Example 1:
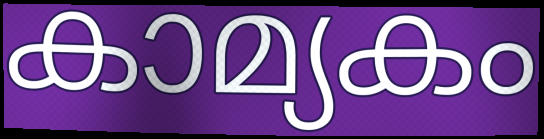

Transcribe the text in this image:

കാമ്യകം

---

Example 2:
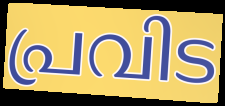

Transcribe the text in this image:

പ്രവിട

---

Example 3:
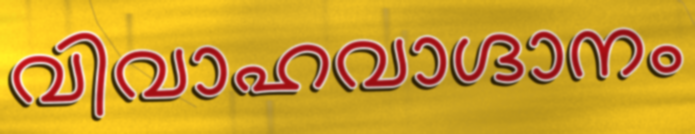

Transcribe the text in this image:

വിവാഹവാഗ്ദാനം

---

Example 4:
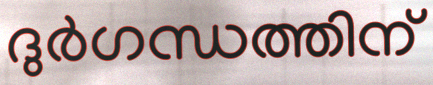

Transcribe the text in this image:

ദുർഗന്ധത്തിന്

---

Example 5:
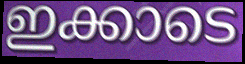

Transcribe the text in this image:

ഇക്കാടെ